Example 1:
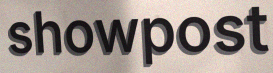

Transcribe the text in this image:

showpost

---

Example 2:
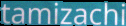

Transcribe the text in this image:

tamizachi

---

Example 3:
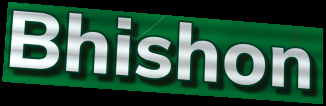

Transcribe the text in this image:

Bhishon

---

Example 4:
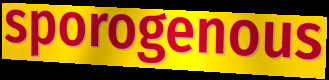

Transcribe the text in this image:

sporogenous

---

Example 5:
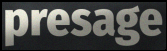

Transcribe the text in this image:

presage